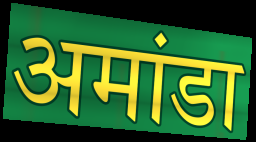
अमांडा